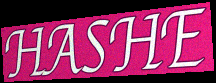
HASHE